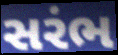
સરંભ